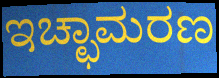
ಇಚ್ಛಾಮರಣ